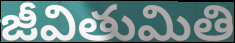
జీవితుమితి